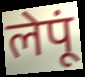
लेपूं